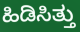
ಹಿಡಿಸಿತ್ತು